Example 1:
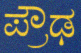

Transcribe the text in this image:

ಪ್ರೌಢ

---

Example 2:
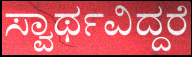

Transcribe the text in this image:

ಸ್ವಾರ್ಥವಿದ್ದರೆ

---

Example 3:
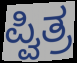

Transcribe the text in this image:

ಪ್ವಿತ್ರ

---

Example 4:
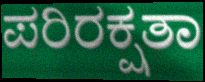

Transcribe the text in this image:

ಪರಿರಕ್ಷತಾ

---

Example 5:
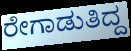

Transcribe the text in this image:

ರೇಗಾಡುತಿದ್ದ